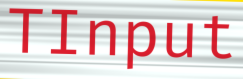
TInput